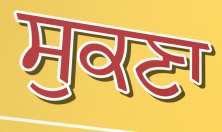
ਸੁਕਣਾ